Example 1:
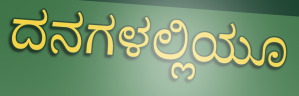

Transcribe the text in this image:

ದನಗಳಲ್ಲಿಯೂ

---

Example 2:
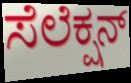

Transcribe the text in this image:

ಸೆಲೆಕ್ಷನ್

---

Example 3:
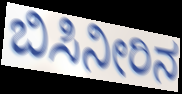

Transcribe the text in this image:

ಬಿಸಿನೀರಿನ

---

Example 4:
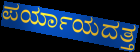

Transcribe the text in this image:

ಪರ್ಯಾಯದತ್ತ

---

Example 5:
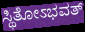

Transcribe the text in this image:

ಸ್ಥಿತೋಽಭವತ್